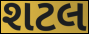
શટલ